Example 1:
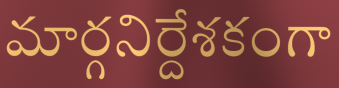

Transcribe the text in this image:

మార్గనిర్దేశకంగా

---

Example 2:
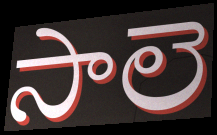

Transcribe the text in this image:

సాలె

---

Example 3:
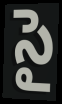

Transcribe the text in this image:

సై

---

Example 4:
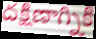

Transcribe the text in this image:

దక్షిణాగ్నికి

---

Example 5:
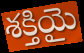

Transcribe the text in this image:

శక్తియై